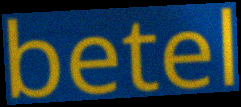
betel